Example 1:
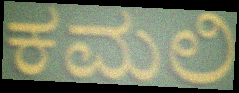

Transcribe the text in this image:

ಕಮಲಿ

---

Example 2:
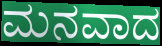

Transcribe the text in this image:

ಮನವಾದ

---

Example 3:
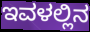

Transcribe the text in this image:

ಇವಳಲ್ಲಿನ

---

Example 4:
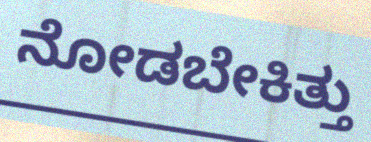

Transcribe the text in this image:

ನೋಡಬೇಕಿತ್ತು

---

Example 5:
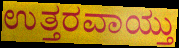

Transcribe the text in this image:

ಉತ್ತರವಾಯ್ತು